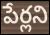
పేర్లని